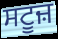
ਸਟੂਜ਼